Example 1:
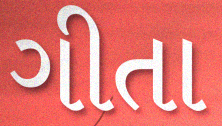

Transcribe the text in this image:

ગીતા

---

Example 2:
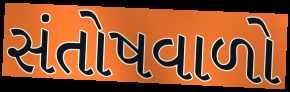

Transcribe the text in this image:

સંતોષવાળો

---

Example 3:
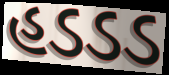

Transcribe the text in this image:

હડડડ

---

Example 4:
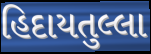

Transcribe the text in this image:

હિદાયતુલ્લા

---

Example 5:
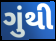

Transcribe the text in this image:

ગુંથી